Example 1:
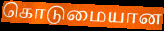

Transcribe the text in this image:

கொடுமையான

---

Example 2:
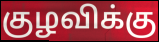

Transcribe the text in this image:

குழவிக்கு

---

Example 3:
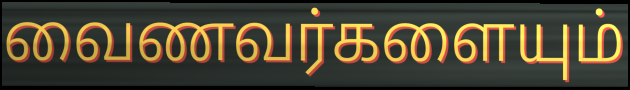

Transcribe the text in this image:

வைணவர்களையும்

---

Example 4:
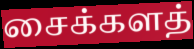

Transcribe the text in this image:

சைக்களத்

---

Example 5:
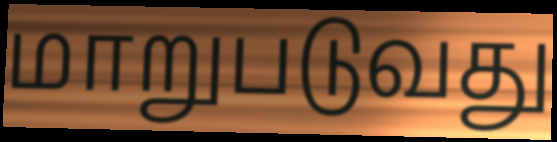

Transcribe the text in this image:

மாறுபடுவது